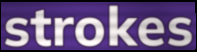
strokes